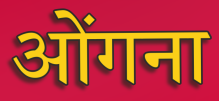
ओंगना